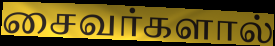
சைவர்களால்